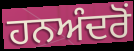
ਹਨਅੰਦਰੋਂ